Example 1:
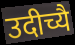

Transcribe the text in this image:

उदीच्यै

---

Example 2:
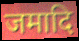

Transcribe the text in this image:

जमादि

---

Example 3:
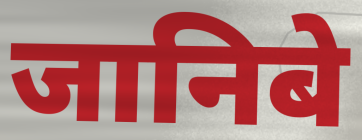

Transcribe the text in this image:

जानिबे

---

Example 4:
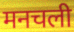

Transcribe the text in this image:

मनचली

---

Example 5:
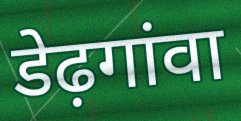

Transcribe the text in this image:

डेढ़गांवा